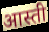
आस्ती